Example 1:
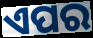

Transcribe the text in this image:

ଏପର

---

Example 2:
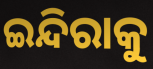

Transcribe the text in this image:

ଇନ୍ଦିରାକୁ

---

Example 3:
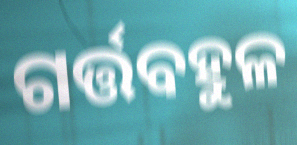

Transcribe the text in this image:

ଗର୍ତ୍ତବହୁଳ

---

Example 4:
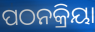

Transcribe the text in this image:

ପଠନକ୍ରିୟା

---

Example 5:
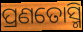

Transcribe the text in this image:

ପ୍ରଣତୋସ୍ମି